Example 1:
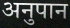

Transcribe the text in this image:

अनुपान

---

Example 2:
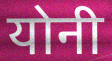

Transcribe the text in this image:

योनी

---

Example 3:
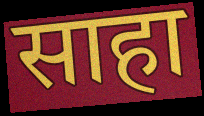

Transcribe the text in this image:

साहा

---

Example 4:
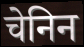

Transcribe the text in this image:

चेनिन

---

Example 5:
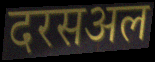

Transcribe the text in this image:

दरसअल